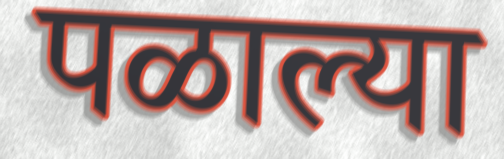
पळाल्या